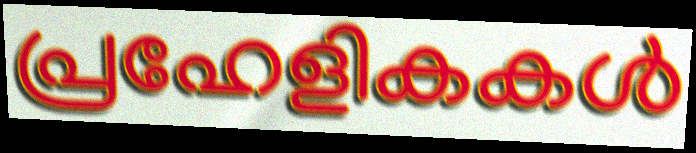
പ്രഹേളികകൾ